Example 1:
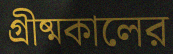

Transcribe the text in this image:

গ্রীষ্মকালের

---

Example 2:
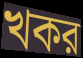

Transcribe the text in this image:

খকর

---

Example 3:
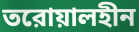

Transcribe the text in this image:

তরোয়ালহীন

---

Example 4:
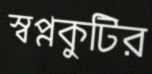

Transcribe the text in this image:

স্বপ্নকুটির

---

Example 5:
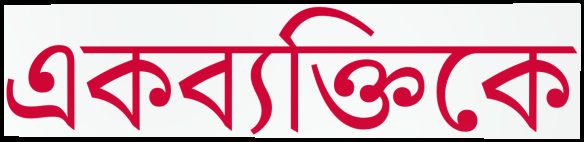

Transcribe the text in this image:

একব্যক্তিকে